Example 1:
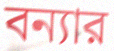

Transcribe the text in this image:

বন্যার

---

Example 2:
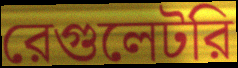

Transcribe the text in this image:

রেগুলেটরি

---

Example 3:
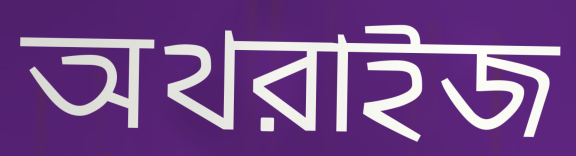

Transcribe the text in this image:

অথরাইজ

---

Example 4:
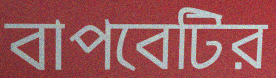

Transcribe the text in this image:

বাপবেটির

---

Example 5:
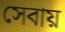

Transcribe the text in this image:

সেবায়